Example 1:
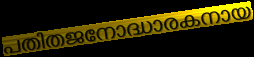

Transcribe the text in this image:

പതിതജനോദ്ധാരകനായ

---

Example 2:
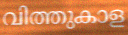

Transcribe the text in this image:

വിത്തുകാള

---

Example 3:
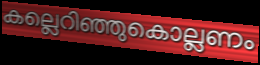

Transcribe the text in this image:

കല്ലെറിഞ്ഞുകൊല്ലണം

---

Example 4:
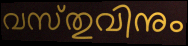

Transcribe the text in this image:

വസ്‌തുവിനും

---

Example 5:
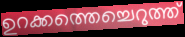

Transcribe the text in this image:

ഉറക്കത്തെച്ചെറുത്ത്